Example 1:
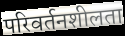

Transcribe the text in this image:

परिवर्तनशीलता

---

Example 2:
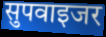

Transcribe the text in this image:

सुपवाइजर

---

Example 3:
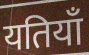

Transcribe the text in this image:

यतियाँ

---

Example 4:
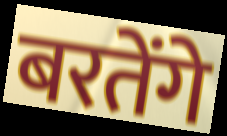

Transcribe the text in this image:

बरतेंगे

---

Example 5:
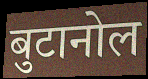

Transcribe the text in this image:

बुटानोल